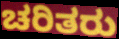
ಚರಿತರು